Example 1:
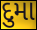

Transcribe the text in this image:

દુમા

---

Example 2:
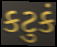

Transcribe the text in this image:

કટુકં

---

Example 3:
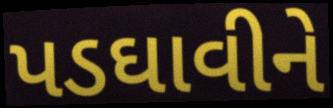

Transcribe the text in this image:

પડઘાવીને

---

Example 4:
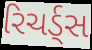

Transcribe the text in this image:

રિચર્ડ્સ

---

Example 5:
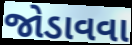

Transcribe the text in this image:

જોડાવવા